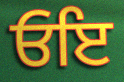
ਓਇ